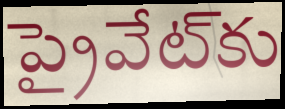
ప్రైవేట్‌కు